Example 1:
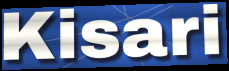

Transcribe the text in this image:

Kisari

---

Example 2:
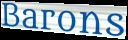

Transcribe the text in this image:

Barons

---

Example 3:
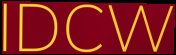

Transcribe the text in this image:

IDCW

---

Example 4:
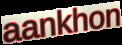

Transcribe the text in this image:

aankhon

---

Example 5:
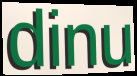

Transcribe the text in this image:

dinu